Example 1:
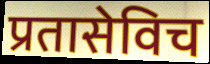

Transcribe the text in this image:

प्रतासेविच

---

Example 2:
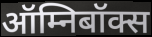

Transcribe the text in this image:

ऑम्निबॉक्स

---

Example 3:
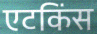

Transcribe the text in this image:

एटकिंस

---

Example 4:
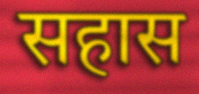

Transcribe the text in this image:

सहास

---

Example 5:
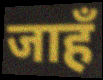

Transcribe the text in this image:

जाहँ